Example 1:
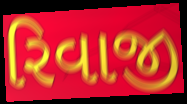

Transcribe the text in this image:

રિવાજી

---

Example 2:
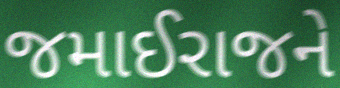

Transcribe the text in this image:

જમાઈરાજને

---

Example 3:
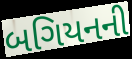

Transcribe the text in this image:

બગિયનની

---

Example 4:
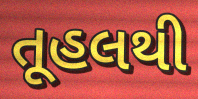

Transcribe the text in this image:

તૂહલથી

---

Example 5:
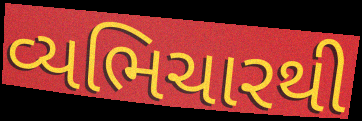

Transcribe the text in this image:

વ્યભિચારથી